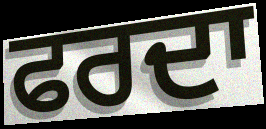
ਫਰਦਾ